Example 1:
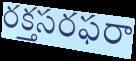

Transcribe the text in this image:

రక్తసరఫరా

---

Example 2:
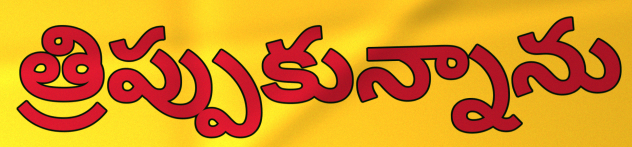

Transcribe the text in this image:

త్రిప్పుకున్నాను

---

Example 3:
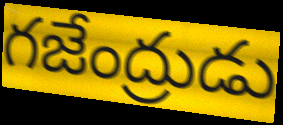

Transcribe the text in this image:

గజేంద్రుడు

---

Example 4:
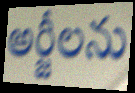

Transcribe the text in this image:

అర్జీలను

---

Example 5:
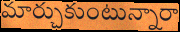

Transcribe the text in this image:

మార్చుకుంటున్నారా